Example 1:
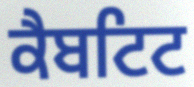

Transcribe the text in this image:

ਕੈਬਟਿਟ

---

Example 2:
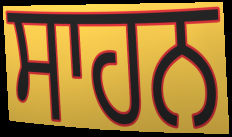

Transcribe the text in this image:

ਸਾਹਨ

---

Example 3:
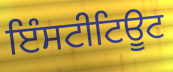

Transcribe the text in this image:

ਇੰਸਟੀਟਿਊਟ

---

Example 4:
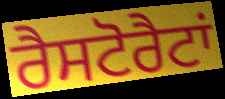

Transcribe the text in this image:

ਰੈਸਟੋਰੈਟਾਂ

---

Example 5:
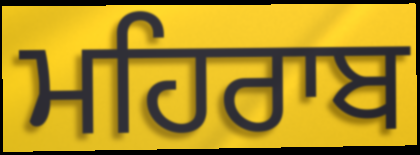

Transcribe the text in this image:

ਮਹਿਰਾਬ